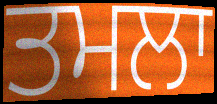
ਤਮਲਾ